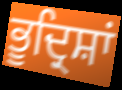
ਭੂਦ੍ਰਿਸ਼ਾਂ